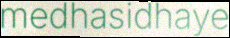
medhasidhaye